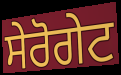
ਸੇਰੋਗੇਟ